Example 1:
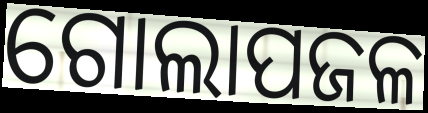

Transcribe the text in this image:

ଗୋଲାପଜଳ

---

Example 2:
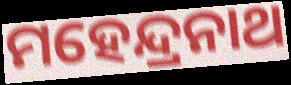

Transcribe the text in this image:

ମହେନ୍ଦ୍ରନାଥ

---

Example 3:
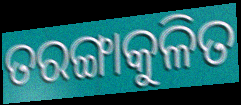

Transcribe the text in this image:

ତରଙ୍ଗାକୁଳିତ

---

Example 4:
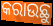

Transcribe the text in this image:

କରାଉଛୁ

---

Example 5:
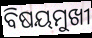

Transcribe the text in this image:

ବିଷୟମୁଖୀ